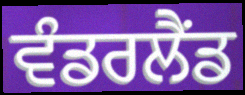
ਵੰਡਰਲੈਂਡ